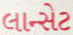
લાન્સેટ